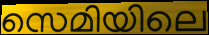
സെമിയിലെ